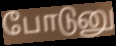
போடுனு